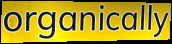
organically